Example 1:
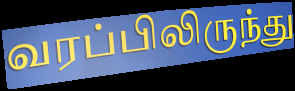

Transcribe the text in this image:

வரப்பிலிருந்து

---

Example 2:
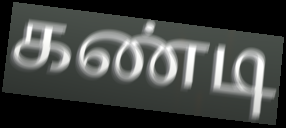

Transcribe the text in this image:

கண்டி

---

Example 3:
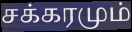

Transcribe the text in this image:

சக்கரமும்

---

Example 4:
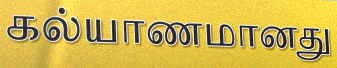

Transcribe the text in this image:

கல்யாணமானது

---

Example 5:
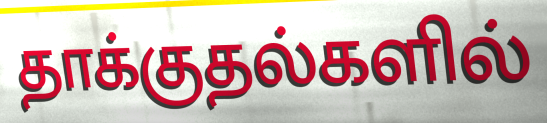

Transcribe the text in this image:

தாக்குதல்களில்